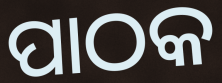
ପାଠକ